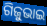
ଗିଜୁଭାଇ